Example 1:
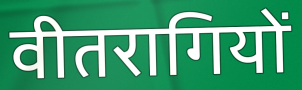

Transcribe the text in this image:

वीतरागियों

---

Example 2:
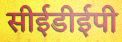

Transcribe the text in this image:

सीईडीईपी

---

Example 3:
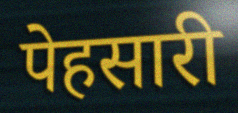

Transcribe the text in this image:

पेहसारी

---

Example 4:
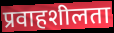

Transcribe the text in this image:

प्रवाहशीलता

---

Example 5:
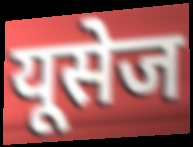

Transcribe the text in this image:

यूसेज